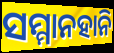
ସମ୍ମାନହାନି